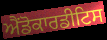
ਐਂਡੋਕਾਰਡੀਟਿਸ